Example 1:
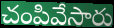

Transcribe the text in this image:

చంపివేసారు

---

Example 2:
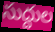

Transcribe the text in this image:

సుద్దుల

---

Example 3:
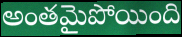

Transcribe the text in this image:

అంతమైపోయింది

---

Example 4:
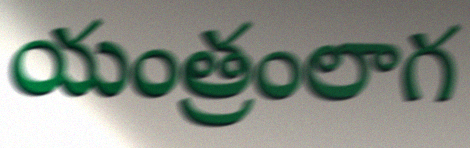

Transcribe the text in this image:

యంత్రంలాగ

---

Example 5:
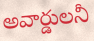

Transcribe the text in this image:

అవార్డులనీ